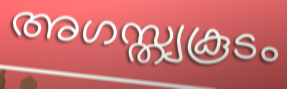
അഗസ്ത്യകൂടം